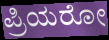
ಪ್ರಿಯರೋ